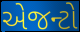
એજન્ટો